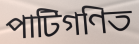
পাটিগণিত